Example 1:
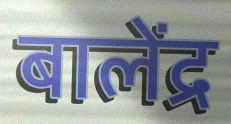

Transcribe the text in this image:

बालेंद्र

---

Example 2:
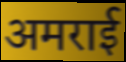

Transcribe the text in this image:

अमराई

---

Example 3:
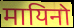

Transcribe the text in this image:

मायिनो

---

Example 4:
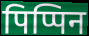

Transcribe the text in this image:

पिप्पिन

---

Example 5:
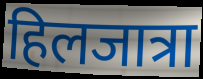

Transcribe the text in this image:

हिलजात्रा